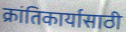
क्रांतिकार्यासाठी